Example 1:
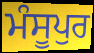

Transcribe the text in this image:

ਮੰਸੂਪੁਰ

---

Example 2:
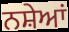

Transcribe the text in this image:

ਨਸ਼ੇਆਂ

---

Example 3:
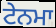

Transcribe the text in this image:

ਟੇਨਮਾ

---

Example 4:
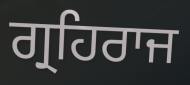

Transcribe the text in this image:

ਗ੍ਰਹਿਰਾਜ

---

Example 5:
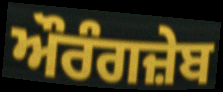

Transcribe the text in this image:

ਔਰੰਗਜ਼ੇਬ